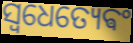
ସ୍ଵଧେତ୍ଯେଵଂ